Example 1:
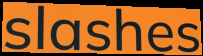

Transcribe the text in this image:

slashes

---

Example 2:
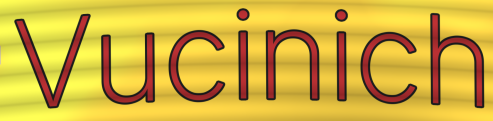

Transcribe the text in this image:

Vucinich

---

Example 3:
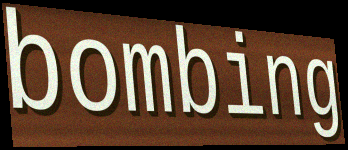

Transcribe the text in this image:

bombing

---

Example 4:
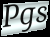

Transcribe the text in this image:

Pgs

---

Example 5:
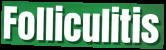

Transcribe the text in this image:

Folliculitis